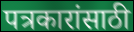
पत्रकारांसाठी